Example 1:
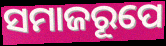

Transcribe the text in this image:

ସମାଜରୂପେ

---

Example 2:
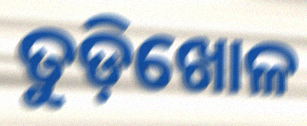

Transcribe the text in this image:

ତୁଡ଼ିଖୋଳ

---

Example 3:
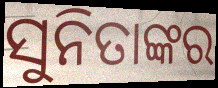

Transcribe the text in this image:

ସୁନିତାଙ୍କର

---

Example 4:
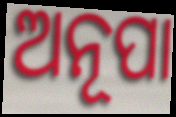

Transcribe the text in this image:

ଅନୂପା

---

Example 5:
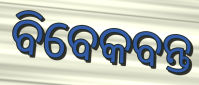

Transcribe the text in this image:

ବିବେକବନ୍ତ